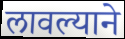
लावल्याने